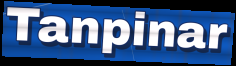
Tanpinar